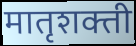
मातृशक्ती